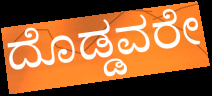
ದೊಡ್ಡವರೇ